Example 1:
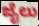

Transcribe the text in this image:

ಜೈಲು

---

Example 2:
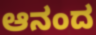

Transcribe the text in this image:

ಆನಂದ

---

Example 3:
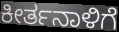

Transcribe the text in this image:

ಕೀರ್ತನಾಳಿಗೆ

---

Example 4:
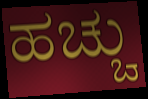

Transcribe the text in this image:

ಹಚ್ಚು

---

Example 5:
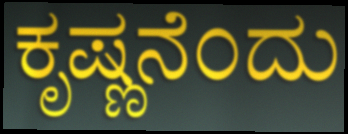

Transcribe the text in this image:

ಕೃಷ್ಣನೆಂದು